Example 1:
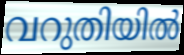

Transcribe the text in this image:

വറുതിയിൽ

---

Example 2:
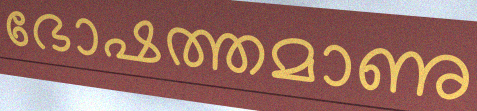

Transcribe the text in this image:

ഭോഷത്തമാണു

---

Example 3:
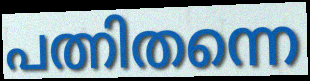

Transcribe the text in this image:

പത്നിതന്നെ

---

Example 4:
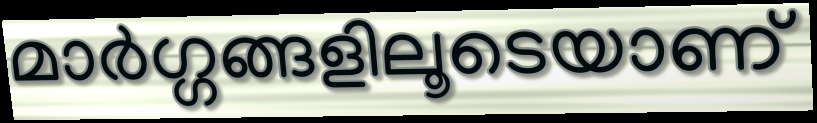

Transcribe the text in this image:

മാർഗ്ഗങ്ങളിലൂടെയാണ്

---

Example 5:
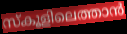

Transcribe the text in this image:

സ്കൂളിലെത്താൻ